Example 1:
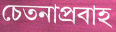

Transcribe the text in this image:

চেতনাপ্রবাহ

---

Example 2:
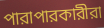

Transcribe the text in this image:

পারাপারকারীরা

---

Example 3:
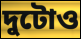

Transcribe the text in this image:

দুটোও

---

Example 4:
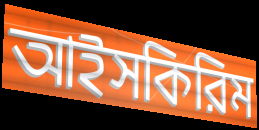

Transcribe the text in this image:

আইসকিরিম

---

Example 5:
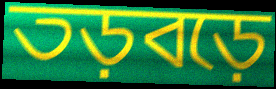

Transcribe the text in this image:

তড়বড়ে